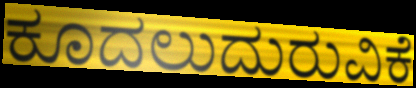
ಕೂದಲುದುರುವಿಕೆ